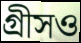
গ্রীসও